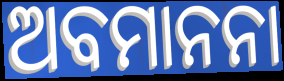
ଅବମାନନା